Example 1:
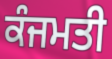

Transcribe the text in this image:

ਕੰਜਮਤੀ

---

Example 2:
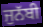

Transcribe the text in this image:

ਜੁਨੱਬੀ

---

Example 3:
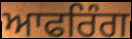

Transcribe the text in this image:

ਆਫਰਿੰਗ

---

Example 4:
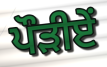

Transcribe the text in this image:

ਪੌੜੀਏਂ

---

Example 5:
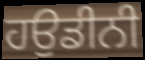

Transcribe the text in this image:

ਹਉਡੀਨੀ